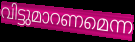
വിട്ടുമാറണമെന്ന